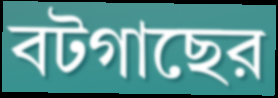
বটগাছের